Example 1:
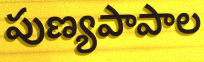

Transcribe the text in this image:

పుణ్యపాపాల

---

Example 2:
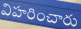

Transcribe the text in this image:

విహరించారు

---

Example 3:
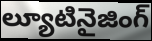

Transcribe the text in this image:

ల్యూటినైజింగ్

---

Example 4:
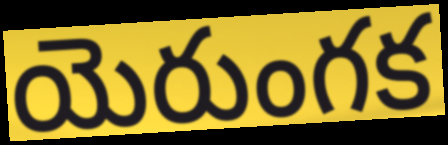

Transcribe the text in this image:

యెరుంగక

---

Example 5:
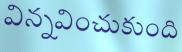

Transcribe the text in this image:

విన్నవించుకుంది